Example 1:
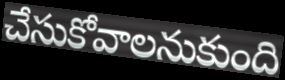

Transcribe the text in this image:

చేసుకోవాలనుకుంది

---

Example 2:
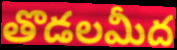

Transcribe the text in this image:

తొడలమీద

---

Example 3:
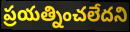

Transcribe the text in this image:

ప్రయత్నించలేదని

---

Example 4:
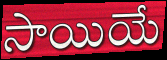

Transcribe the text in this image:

సాయియే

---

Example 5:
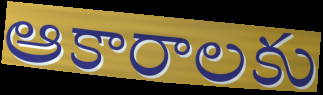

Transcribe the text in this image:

ఆకారాలకు